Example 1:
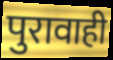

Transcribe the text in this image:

पुरावाही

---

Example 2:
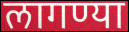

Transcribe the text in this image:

लागण्या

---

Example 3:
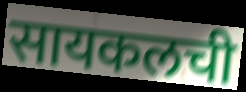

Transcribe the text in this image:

सायकलची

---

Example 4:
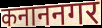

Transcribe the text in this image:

कनाननगर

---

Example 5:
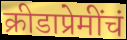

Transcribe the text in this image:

क्रीडाप्रेमींचं